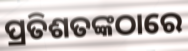
ପ୍ରତିଶତଙ୍କଠାରେ